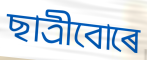
ছাত্ৰীবোৰে